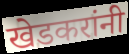
खेडकरांनी